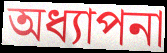
অধ্যাপনা